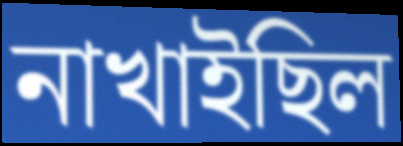
নাখাইছিল